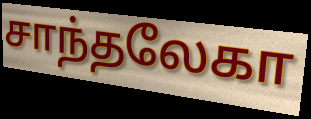
சாந்தலேகா